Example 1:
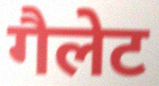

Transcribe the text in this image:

गैलेट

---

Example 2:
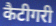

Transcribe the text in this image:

कैटीगरी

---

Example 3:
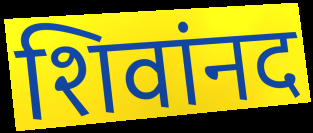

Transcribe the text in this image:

शिवांनद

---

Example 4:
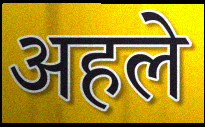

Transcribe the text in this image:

अहले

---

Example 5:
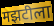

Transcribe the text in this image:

मझटीला